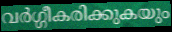
വർഗ്ഗീകരിക്കുകയും